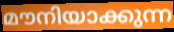
മൗനിയാക്കുന്ന